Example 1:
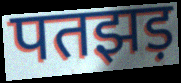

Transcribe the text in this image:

पतझड़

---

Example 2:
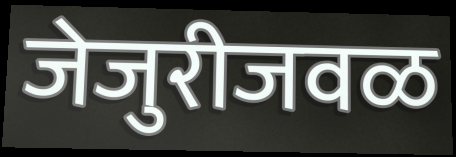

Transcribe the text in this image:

जेजुरीजवळ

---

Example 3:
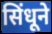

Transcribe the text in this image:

सिंधूने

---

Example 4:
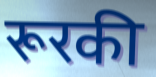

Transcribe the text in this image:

रूरकी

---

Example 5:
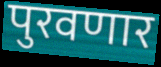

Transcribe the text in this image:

पुरवणार